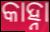
କାହ୍ନା